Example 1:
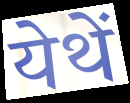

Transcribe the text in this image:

येथें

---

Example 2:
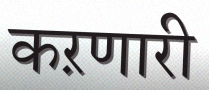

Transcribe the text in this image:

कऱणारी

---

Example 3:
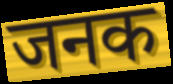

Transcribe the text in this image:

जनक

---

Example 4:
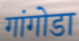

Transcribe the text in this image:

गांगोडा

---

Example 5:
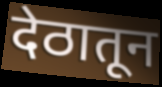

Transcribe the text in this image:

देठातून